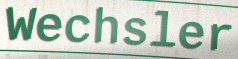
Wechsler